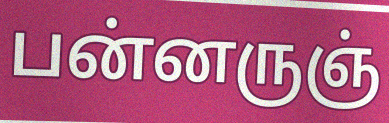
பன்னருஞ்